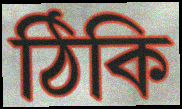
ঠিকি